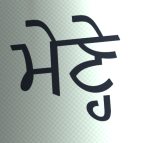
ਮੇਣ੍ਹੇ